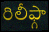
రిలీఫ్గా